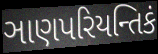
ઞાણપરિયન્તિકં